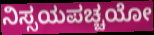
ನಿಸ್ಸಯಪಚ್ಚಯೋ